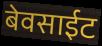
बेवसाईट